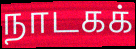
நாடகக்